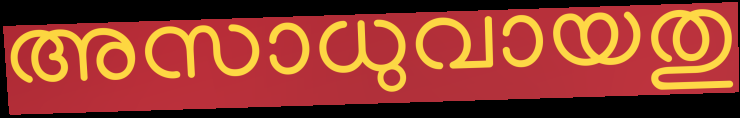
അസാധുവായതു